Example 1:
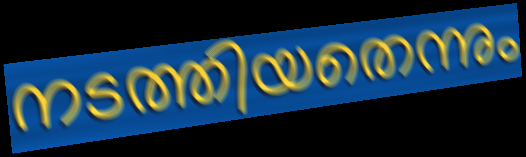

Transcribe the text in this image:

നടത്തിയതെന്നും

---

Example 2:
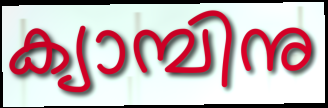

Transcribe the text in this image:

ക്യാമ്പിനു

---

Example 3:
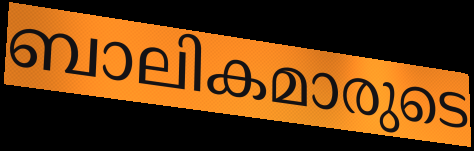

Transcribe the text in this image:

ബാലികമാരുടെ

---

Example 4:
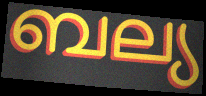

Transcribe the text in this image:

ബല്യ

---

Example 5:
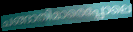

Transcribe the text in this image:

ചങ്ങാതിമാരെപ്പോലെ